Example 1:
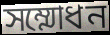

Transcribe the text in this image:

সম্মোধন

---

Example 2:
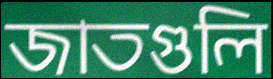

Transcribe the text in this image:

জাতগুলি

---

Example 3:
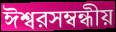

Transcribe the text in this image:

ঈশ্বরসম্বন্ধীয়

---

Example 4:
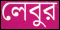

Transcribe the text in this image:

লেবুর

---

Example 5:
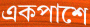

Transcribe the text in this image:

একপাশে